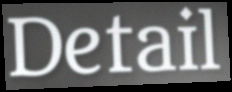
Detail